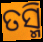
ତସ୍ମି